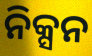
ନିକ୍ସନ